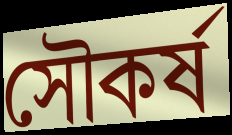
সৌকর্ষ